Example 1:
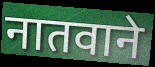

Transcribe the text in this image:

नातवाने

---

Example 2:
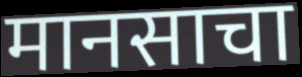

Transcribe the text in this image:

मानसाचा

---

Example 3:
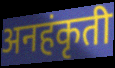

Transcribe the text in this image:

अनहंकृती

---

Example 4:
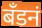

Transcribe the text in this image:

बँडनं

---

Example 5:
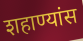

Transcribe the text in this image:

शहाण्यांस